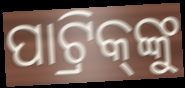
ପାଟ୍ରିକ୍‌ଙ୍କୁ